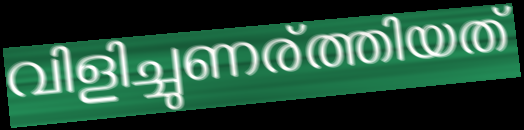
വിളിച്ചുണര്ത്തിയത്